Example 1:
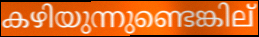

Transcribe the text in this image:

കഴിയുന്നുണ്ടെങ്കില്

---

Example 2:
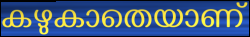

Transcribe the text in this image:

കഴുകാതെയാണ്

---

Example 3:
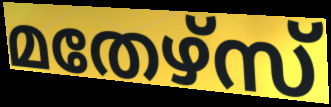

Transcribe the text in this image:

മതേഴ്സ്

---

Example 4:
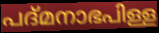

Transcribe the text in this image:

പദ്മനാഭപിള്ള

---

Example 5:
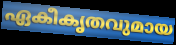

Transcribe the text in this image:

ഏകീകൃതവുമായ